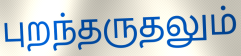
புறந்தருதலும்